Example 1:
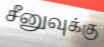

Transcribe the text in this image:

சீனுவுக்கு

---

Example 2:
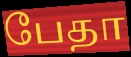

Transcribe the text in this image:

பேதா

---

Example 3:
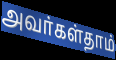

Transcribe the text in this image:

அவர்கள்தாம்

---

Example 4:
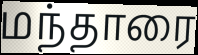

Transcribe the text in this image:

மந்தாரை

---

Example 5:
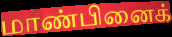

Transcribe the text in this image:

மாண்பினைக்